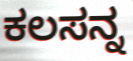
ಕಲಸನ್ನ